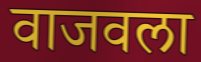
वाजवला